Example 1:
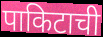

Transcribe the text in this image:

पाकिटाची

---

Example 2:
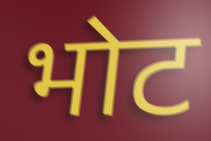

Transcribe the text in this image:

भोट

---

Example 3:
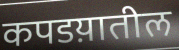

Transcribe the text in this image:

कपडय़ातील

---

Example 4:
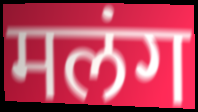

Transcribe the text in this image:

मलंग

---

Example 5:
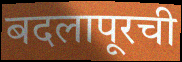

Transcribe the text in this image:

बदलापूरची